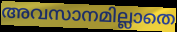
അവസാനമില്ലാതെ